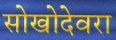
सोखोदेवरा